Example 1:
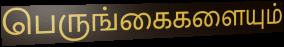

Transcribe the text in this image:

பெருங்கைகளையும்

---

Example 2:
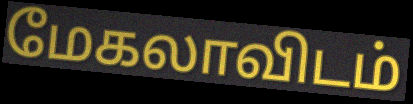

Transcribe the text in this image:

மேகலாவிடம்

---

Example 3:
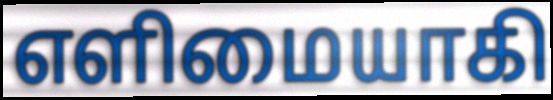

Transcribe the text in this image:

எளிமையாகி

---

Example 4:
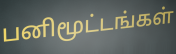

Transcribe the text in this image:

பனிமூட்டங்கள்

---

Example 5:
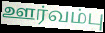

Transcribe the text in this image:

ஊர்வம்பு